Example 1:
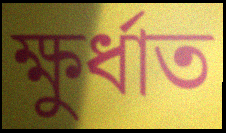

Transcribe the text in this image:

ক্ষুর্ধাত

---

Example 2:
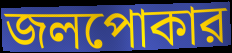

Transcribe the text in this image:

জলপোকার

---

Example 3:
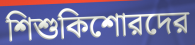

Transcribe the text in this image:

শিশুকিশোরদের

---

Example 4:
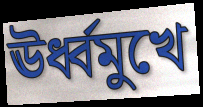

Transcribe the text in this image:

ঊর্ধ্বমুখে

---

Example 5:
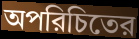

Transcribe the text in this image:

অপরিচিতের